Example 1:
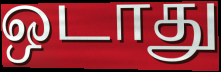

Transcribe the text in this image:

ஒடாது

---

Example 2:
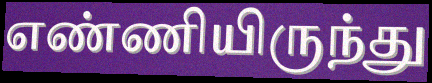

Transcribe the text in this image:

எண்ணியிருந்து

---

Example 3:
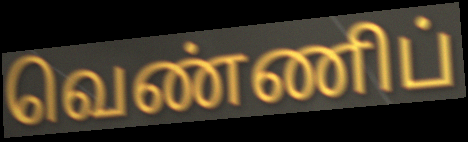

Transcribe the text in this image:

வெண்ணிப்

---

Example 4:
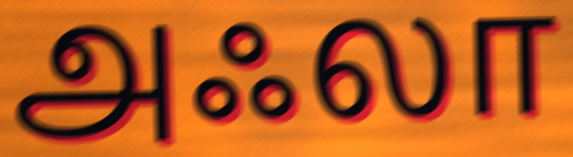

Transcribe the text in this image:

அஃலா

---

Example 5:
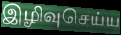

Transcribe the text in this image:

இழிவுசெய்ய